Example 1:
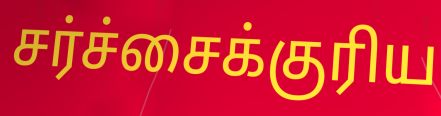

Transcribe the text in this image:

சர்ச்சைக்குரிய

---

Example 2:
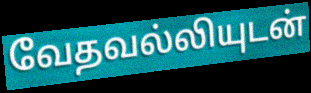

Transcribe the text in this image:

வேதவல்லியுடன்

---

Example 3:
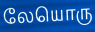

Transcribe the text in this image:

லேயொரு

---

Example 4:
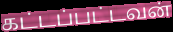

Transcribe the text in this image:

கட்டப்பட்டவன்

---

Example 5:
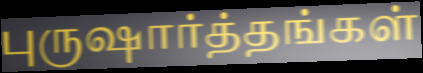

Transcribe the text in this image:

புருஷார்த்தங்கள்